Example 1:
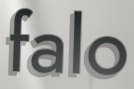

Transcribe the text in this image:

falo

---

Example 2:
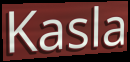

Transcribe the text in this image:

Kasla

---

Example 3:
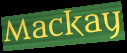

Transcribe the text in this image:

Mackay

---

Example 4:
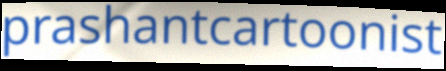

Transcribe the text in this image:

prashantcartoonist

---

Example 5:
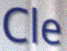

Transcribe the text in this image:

Cle